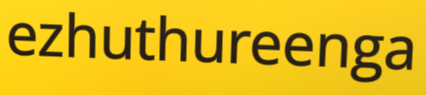
ezhuthureenga